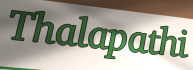
Thalapathi